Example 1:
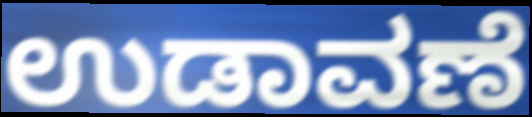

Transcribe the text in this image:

ಉಡಾವಣೆ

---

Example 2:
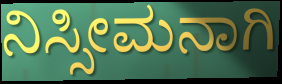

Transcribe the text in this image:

ನಿಸ್ಸೀಮನಾಗಿ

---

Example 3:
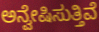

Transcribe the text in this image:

ಅನ್ವೇಷಿಸುತ್ತಿವೆ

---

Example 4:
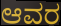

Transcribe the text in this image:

ಆವರ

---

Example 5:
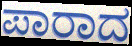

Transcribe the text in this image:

ಪಾರಾದ